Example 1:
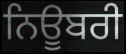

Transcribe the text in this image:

ਨਿਊਬਰੀ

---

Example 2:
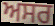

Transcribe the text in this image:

ਅਸਰ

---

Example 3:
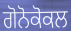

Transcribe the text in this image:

ਗੋਨੋਕੋਕਲ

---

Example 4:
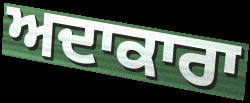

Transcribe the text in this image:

ਅਦਾਕਾਰਾ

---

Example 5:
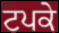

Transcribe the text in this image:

ਟਪਕੇ